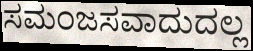
ಸಮಂಜಸವಾದುದಲ್ಲ